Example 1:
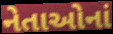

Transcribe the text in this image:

નેતાઓનાં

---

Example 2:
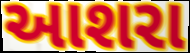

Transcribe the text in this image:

આશરા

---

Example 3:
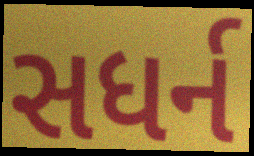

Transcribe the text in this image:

સધર્ન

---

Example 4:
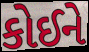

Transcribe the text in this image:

કોઈને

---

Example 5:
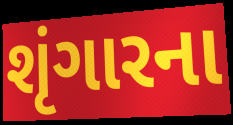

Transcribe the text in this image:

શૃંગારના